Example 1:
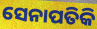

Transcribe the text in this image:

ସେନାପତିକି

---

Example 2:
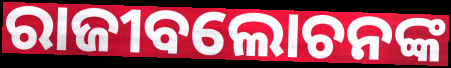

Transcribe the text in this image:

ରାଜୀବଲୋଚନଙ୍କ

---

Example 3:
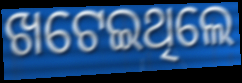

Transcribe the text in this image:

ଖଟେଇଥିଲେ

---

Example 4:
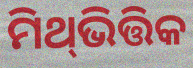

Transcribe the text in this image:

ମିଥ୍‍ଭିତ୍ତିକ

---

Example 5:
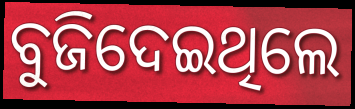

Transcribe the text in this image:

ବୁଜିଦେଇଥିଲେ